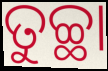
ତୁଚ୍ଛା